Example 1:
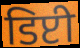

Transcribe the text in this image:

डिप्टी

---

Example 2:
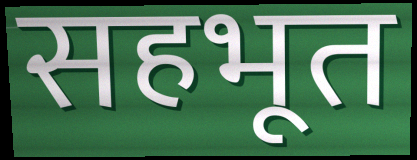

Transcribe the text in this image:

सहभूत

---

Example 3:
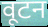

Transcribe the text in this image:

वूटन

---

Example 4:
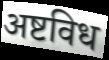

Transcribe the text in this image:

अष्टविध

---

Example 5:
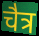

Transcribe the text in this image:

चैत्र